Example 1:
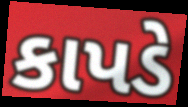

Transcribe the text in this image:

કાપડે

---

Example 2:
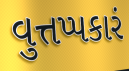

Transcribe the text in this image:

વુત્તપ્પકારં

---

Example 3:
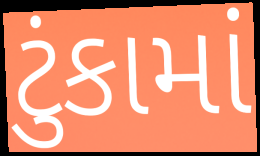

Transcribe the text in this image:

ટુંકામાં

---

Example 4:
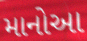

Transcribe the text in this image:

માનોઆ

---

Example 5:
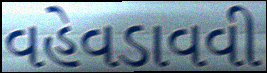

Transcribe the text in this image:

વહેવડાવવી